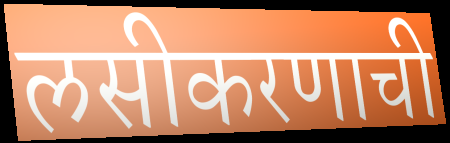
लसीकरणाची